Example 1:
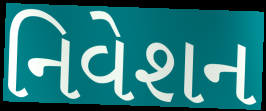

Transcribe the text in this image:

નિવેશન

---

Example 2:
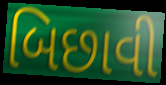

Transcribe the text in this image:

બિછાવી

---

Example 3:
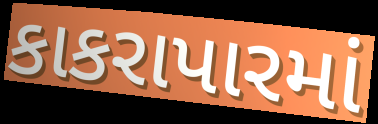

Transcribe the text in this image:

કાકરાપારમાં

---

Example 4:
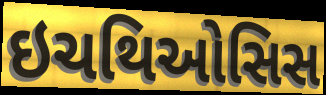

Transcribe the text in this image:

ઇચથિઓસિસ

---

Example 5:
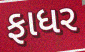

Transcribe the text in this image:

ફાધર